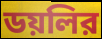
ডয়লির